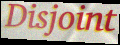
Disjoint